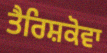
ਤੈਰਿਸ਼ਕੋਵਾ